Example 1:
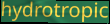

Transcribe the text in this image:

hydrotropic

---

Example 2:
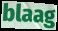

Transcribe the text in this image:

blaag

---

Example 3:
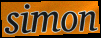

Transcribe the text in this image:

simon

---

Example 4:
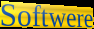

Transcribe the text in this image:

Softwere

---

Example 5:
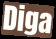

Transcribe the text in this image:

Diga